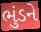
ભુંડને